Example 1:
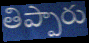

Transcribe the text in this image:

తిప్పారు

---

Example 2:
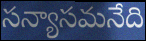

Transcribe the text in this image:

సన్యాసమనేది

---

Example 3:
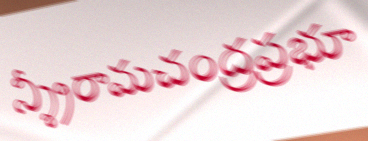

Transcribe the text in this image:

న్శ్రీరామచంద్రప్రభూ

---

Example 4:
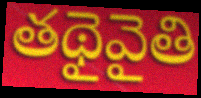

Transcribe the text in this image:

తథైవైతి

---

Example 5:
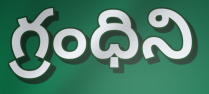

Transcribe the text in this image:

గ్రంధిని